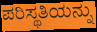
ಪರಿಸ್ಥತಿಯನ್ನು